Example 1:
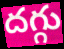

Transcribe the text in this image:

దగ్గు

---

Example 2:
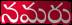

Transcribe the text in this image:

నమరు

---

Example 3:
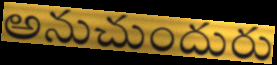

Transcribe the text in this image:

అనుచుందురు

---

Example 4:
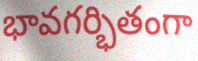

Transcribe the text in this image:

భావగర్భితంగా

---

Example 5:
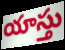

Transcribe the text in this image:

యాస్తు